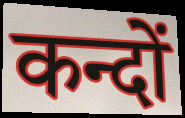
कन्दों